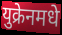
युक्रेनमधे